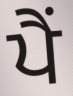
ਪੈਂ